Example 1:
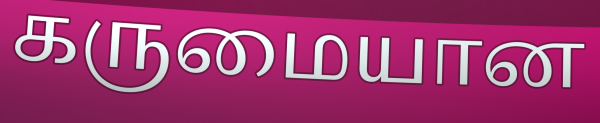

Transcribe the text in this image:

கருமையான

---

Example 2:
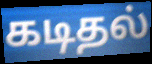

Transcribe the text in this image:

கடிதல்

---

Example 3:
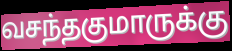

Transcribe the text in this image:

வசந்தகுமாருக்கு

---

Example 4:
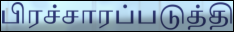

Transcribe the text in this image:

பிரச்சாரப்படுத்தி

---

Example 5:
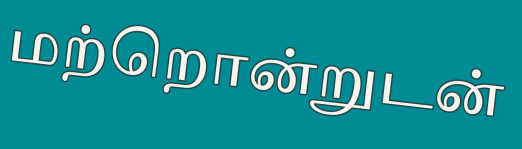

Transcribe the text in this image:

மற்றொன்றுடன்